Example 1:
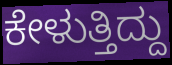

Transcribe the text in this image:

ಕೇಳುತ್ತಿದ್ದು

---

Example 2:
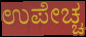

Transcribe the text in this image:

ಉಪೇಚ್ಚ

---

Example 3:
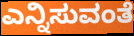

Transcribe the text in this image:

ಎನ್ನಿಸುವಂತೆ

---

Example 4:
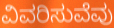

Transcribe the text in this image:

ವಿವರಿಸುವೆವು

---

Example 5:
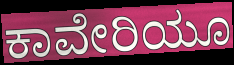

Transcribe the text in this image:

ಕಾವೇರಿಯೂ